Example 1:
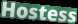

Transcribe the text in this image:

Hostess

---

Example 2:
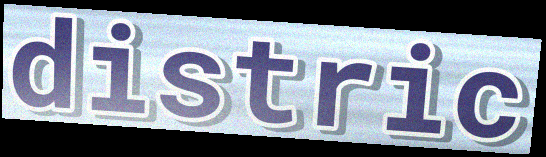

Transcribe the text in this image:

distric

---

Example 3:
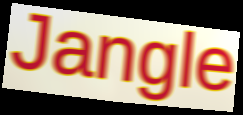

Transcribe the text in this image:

Jangle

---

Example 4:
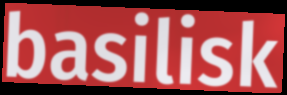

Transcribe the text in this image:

basilisk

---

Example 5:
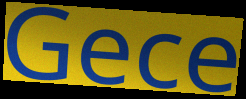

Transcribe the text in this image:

Gece